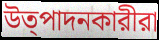
উত্পাদনকারীরা